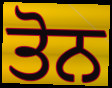
ਤੋਨ